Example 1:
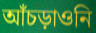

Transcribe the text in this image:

আঁচড়াওনি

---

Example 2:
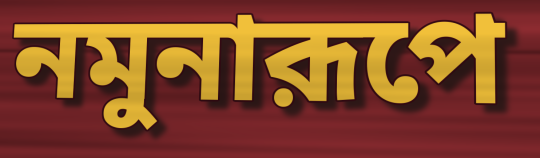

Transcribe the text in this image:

নমুনারূপে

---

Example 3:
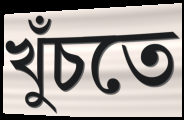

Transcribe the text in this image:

খুঁচতে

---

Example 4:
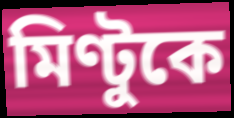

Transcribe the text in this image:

মিণ্টুকে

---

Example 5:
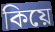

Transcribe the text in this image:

কিয়ে